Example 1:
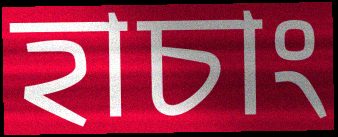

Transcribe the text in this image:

হাচাং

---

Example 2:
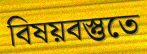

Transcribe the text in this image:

বিষয়বস্তুতে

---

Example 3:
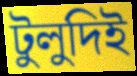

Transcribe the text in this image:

টুলুদিই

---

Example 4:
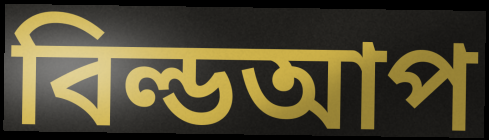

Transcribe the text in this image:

বিল্ডআপ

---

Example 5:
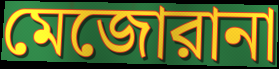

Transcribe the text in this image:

মেজোরানা